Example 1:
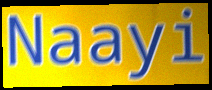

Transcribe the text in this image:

Naayi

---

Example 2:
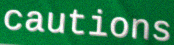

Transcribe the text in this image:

cautions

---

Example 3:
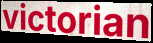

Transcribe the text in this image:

victorian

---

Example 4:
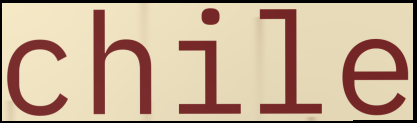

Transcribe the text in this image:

chile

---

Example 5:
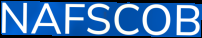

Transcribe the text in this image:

NAFSCOB